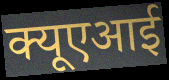
क्यूएआई